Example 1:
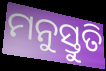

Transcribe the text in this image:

ମନୁସ୍ତୁତି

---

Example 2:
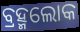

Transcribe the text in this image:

ବ୍ରହ୍ମଲୋକ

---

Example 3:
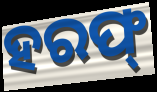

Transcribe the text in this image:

ହରଫ୍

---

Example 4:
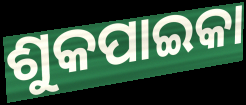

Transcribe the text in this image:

ଶୁକପାଇକା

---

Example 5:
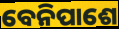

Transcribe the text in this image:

ବେନିପାଶେ